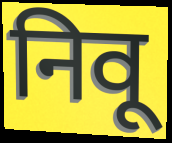
निवू